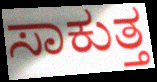
ಸಾಕುತ್ತ